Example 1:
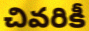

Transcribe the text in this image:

చివరికీ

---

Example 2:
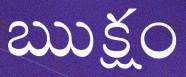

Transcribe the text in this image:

ఋక్షం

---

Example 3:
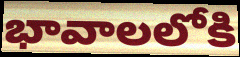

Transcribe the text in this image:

భావాలలోకి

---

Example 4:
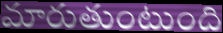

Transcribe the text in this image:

మారుతుంటుంది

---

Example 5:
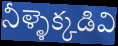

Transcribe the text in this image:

నీళ్ళెక్కడివి